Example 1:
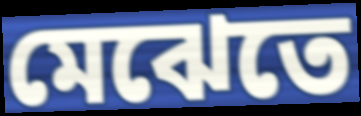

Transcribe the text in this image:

মেঝেতে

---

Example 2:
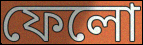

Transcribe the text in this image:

ফেলো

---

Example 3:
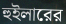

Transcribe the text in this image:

হুইলারের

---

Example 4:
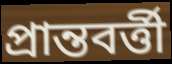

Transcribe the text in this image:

প্রান্তবর্ত্তী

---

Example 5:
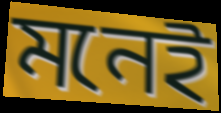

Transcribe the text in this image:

মনেই